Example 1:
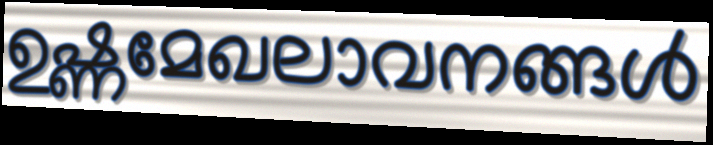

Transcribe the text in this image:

ഉഷ്ണമേഖലാവനങ്ങൾ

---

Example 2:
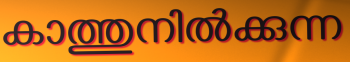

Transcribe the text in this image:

കാത്തുനിൽക്കുന്ന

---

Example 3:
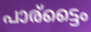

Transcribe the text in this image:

പാര്ട്ടൈം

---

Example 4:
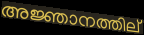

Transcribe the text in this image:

അജ്ഞാനത്തില്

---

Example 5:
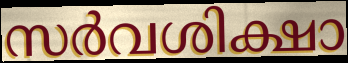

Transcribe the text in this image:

സർവശിക്ഷാ